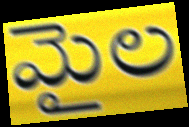
మైల